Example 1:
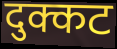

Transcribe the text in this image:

दुक्कट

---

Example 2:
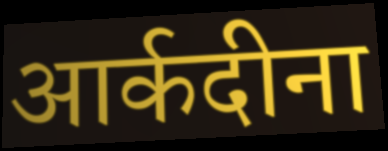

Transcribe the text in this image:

आर्कदीना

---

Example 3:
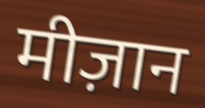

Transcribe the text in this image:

मीज़ान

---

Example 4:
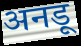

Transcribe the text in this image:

अनडू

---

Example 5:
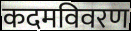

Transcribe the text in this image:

कदमविवरण